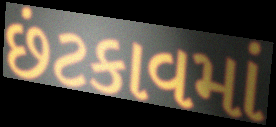
છંટકાવમાં